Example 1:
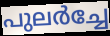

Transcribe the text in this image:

പുലർച്ചേ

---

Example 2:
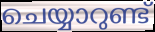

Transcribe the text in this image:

ചെയ്യാറുണ്ട്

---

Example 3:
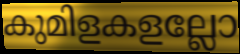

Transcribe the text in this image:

കുമിളകളല്ലോ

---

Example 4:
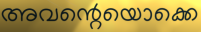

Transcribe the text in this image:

അവന്റെയൊക്കെ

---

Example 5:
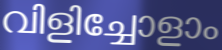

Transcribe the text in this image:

വിളിച്ചോളാം